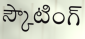
స్కౌటింగ్